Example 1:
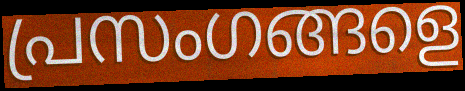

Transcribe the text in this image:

പ്രസംഗങ്ങളെ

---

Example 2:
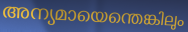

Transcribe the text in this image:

അന്യമായെന്തെങ്കിലും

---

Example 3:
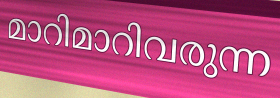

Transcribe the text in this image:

മാറിമാറിവരുന്ന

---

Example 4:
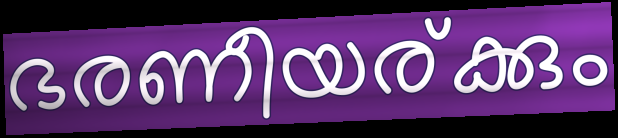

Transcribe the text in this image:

ഭരണീയര്ക്കും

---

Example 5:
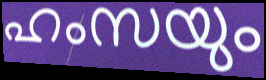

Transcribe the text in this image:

ഹംസയും